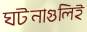
ঘটনাগুলিই